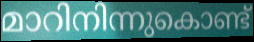
മാറിനിന്നുകൊണ്ട്